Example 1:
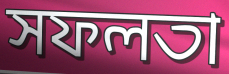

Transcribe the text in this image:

সফলতা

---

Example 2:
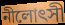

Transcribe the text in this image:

নীলোৎসী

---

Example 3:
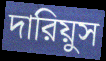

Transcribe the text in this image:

দারিয়ুস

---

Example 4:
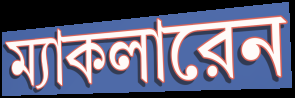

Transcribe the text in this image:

ম্যাকলারেন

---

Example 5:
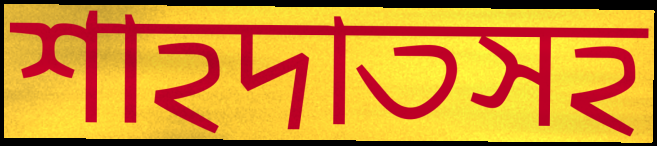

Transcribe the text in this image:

শাহদাতসহ